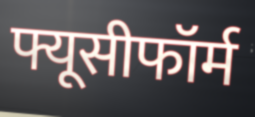
फ्यूसीफॉर्म